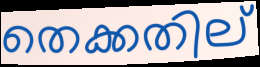
തെക്കതില്